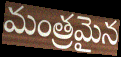
మంత్రమైన